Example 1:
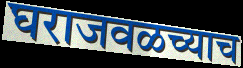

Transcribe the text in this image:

घराजवळच्याच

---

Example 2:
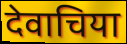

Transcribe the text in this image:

देवाचिया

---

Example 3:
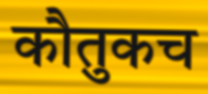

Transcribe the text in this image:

कौतुकच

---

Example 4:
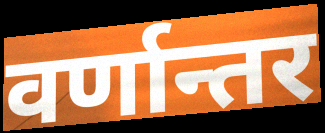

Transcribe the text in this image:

वर्णान्तर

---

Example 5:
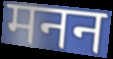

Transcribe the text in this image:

मनन